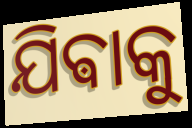
ଯିଵାକୁ